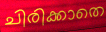
ചിരിക്കാതെ